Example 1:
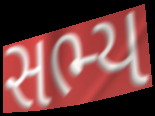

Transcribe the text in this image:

સભ્ય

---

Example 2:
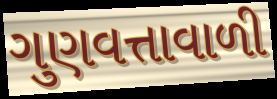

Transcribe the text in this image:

ગુણવત્તાવાળી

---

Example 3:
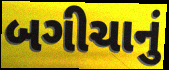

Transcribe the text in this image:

બગીચાનું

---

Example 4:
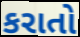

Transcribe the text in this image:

કરાતો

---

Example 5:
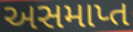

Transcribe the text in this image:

અસમાપ્ત